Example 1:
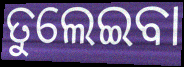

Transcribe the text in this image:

ତୁଲେଇବା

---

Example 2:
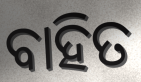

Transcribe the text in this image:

ବାହିତ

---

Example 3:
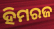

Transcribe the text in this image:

ହିମରଜ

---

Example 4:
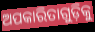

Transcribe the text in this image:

ଅପକାରିତାଗୁଡ଼ିକୁ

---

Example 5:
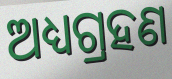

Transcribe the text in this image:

ଅଧ୍ୟଗ୍ରହଣ